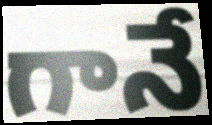
గానే